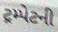
ટ્રમ્પેટની